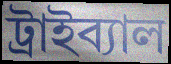
ট্রাইব্যাল